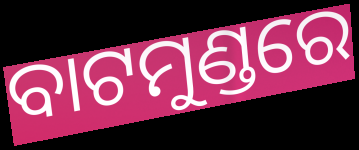
ବାଟମୁଣ୍ଡରେ